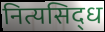
नित्यसिद्ध